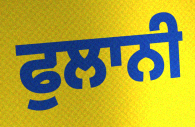
ਫੁਲਾਨੀ